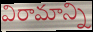
విరామాన్ని